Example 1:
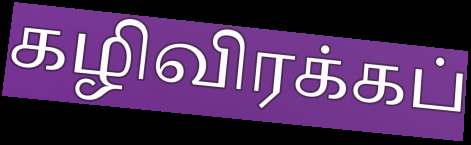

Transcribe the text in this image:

கழிவிரக்கப்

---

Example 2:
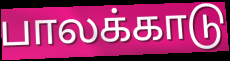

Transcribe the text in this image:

பாலக்காடு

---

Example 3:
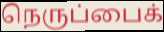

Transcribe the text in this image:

நெருப்பைக்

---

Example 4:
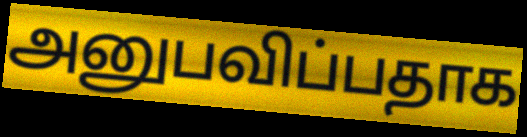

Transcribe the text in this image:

அனுபவிப்பதாக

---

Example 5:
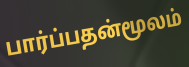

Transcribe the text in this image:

பார்ப்பதன்மூலம்